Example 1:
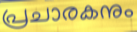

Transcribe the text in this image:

പ്രചാരകനും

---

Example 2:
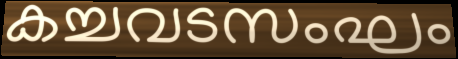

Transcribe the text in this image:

കച്ചവടസംഘം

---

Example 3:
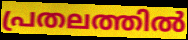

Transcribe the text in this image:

പ്രതലത്തിൽ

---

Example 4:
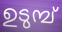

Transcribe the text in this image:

ഉടുമ്പ്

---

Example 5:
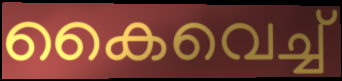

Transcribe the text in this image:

കൈവെച്ച്